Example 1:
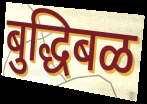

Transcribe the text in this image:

बुद्धिबळ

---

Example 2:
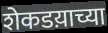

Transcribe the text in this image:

शेकडय़ाच्या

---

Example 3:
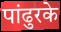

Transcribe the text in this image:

पांढुरके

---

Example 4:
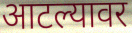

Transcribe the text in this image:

आटल्यावर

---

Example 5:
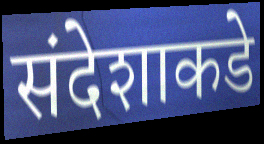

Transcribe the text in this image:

संदेशाकडे